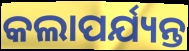
କଲାପର୍ଯ୍ୟନ୍ତ